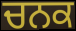
ਚਨਕ